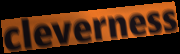
cleverness